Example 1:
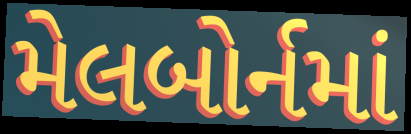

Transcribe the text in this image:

મેલબોર્નમાં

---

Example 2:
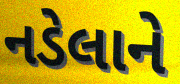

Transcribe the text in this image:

નડેલાને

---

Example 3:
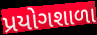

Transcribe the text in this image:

પ્રયોગશાળા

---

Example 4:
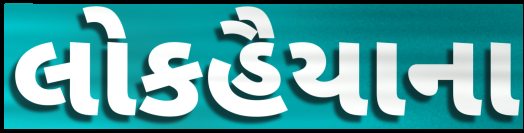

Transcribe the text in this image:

લોકહૈયાના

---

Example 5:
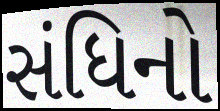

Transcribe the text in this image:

સંધિનો